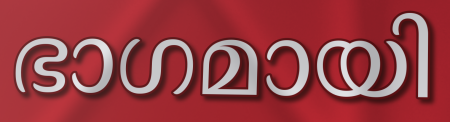
ഭാഗമായി